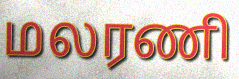
மலரணி